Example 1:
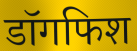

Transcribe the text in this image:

डॉगफिश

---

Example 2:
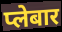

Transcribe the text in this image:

प्लेबार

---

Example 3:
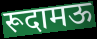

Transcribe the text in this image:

रूदामऊ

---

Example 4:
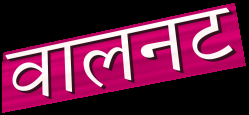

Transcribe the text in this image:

वालनट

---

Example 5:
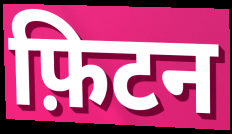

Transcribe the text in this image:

फ़िटन